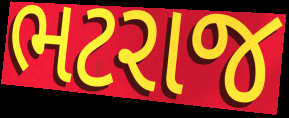
ભટરાજ